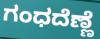
ಗಂಧದೆಣ್ಣೆ